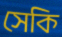
সেকি